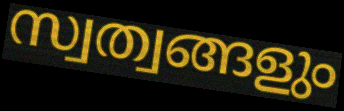
സ്വത്വങ്ങളും